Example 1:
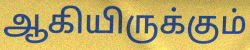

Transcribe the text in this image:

ஆகியிருக்கும்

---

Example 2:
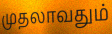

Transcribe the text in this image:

முதலாவதும்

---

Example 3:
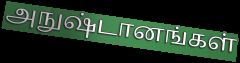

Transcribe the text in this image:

அநுஷ்டானங்கள்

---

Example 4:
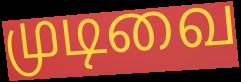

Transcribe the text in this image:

முடிவை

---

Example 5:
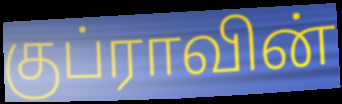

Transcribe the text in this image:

குப்ராவின்